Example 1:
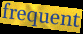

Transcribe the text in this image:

frequent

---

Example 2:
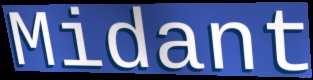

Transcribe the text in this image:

Midant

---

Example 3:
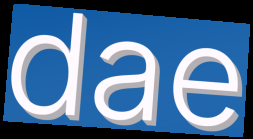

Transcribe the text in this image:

dae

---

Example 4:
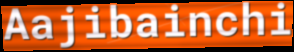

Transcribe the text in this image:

Aajibainchi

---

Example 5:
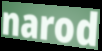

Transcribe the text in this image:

narod